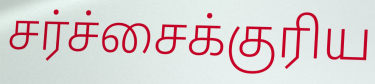
சர்ச்சைக்குரிய